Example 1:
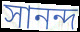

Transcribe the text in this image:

সানন্দ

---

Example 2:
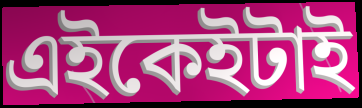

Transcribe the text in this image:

এইকেইটাই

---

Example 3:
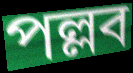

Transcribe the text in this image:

পল্লব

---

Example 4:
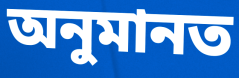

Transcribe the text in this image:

অনুমানত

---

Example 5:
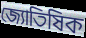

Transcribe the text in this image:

জ্যোতিষিক